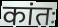
कांतः